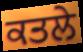
ਕਤਲੇ